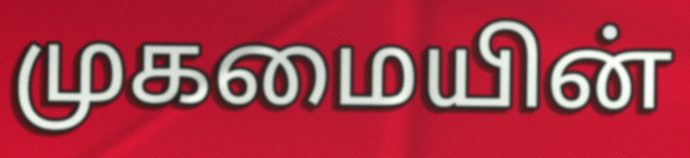
முகமையின்